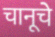
चानूचे